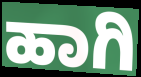
ಹಾಗಿ